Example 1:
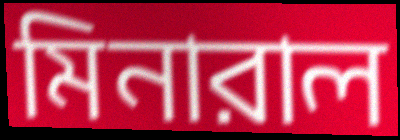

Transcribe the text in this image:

মিনারাল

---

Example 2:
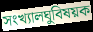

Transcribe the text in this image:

সংখ্যালঘুবিষয়ক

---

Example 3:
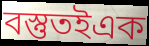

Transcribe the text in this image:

বস্তুতইএক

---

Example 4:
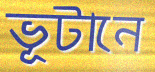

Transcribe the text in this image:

ভূটানে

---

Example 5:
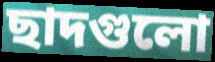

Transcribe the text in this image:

ছাদগুলো